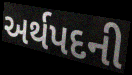
અર્થપદની